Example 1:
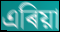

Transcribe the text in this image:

এৰিয়া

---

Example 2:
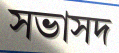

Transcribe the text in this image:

সভাসদ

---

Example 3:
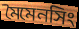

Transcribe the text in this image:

মৈমেনসিং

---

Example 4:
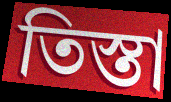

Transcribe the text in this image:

তিস্তা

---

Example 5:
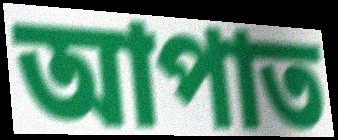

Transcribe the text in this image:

আপাত